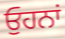
ਓੁਹਨਾਂ